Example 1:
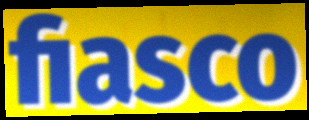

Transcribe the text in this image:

fiasco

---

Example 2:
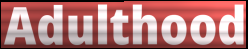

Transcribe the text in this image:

Adulthood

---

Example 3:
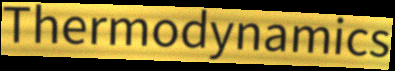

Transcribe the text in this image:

Thermodynamics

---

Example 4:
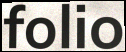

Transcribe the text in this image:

folio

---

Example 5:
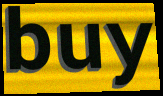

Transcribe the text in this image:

buy